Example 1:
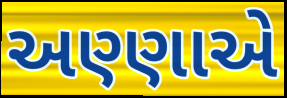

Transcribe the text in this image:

અણ્ણાએ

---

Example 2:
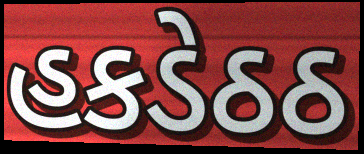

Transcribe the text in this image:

હકડેઠઠ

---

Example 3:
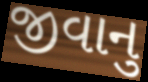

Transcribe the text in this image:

જીવાનુ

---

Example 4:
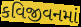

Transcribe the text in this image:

કવિજીવનમાં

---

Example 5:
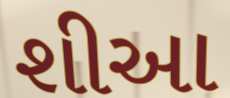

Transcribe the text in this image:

શીઆ